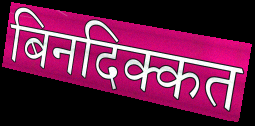
बिनदिक्कत